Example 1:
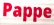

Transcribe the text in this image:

Pappe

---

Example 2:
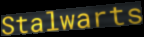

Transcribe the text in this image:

Stalwarts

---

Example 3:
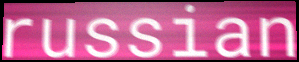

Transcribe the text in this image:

russian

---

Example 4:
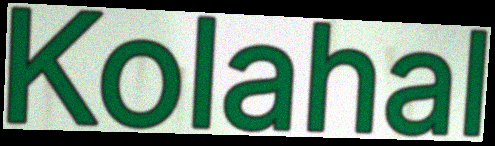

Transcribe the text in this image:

Kolahal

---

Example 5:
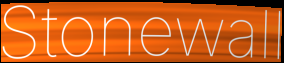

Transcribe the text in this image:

Stonewall